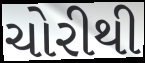
ચોરીથી